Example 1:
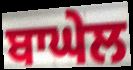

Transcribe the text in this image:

ਬਾਘੇਲ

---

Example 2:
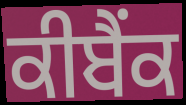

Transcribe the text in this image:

ਕੀਬੈਂਕ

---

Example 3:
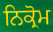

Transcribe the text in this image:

ਨਿਕ੍ਰੋਮ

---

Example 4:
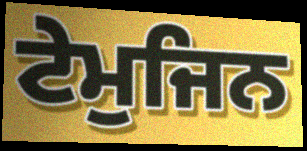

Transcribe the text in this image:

ਟੇਮੁਜਿਨ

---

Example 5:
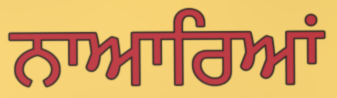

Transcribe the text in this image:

ਨਾਆਰਿਆਂ